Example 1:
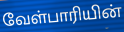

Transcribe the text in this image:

வேள்பாரியின்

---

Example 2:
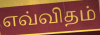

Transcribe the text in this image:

எவ்விதம்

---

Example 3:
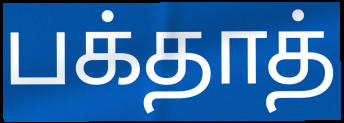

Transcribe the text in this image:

பக்தாத்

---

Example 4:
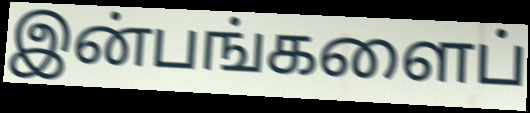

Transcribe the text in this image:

இன்பங்களைப்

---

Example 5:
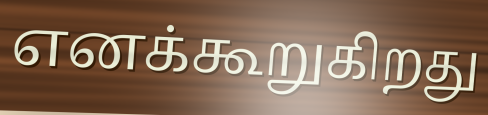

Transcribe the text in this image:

எனக்கூறுகிறது